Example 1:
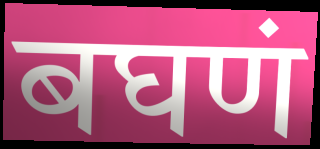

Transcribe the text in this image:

बघणं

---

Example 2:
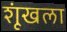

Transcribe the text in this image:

श्रृंखला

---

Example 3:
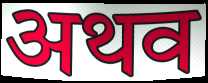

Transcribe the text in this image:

अथव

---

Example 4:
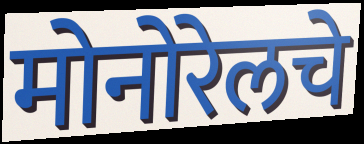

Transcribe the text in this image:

मोनोरेलचे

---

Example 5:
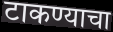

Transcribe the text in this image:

टाकण्याचा